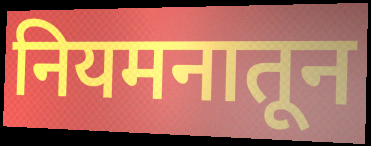
नियमनातून